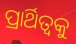
ପ୍ରାର୍ଥିତ୍ୱକୁ